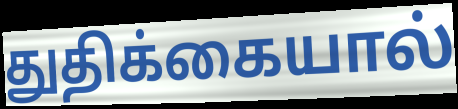
துதிக்கையால்